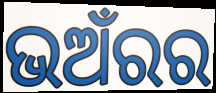
ଭଅଁରର